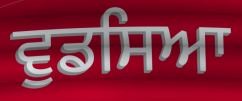
ਵੁਡਸਿਆ